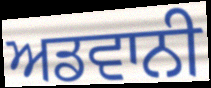
ਅਡਵਾਨੀ